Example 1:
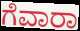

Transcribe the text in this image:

ಗೆವಾರಾ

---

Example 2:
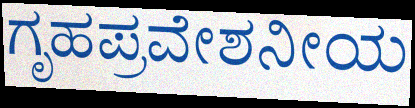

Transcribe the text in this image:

ಗೃಹಪ್ರವೇಶನೀಯ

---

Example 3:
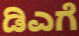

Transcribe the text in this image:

ಡಿಎಗೆ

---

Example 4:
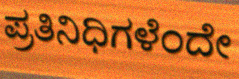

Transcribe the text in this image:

ಪ್ರತಿನಿಧಿಗಳೆಂದೇ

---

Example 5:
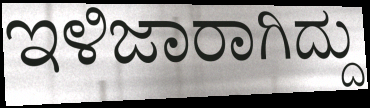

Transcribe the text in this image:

ಇಳಿಜಾರಾಗಿದ್ದು